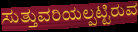
ಸುತ್ತುವರಿಯಲ್ಪಟ್ಟಿರುವ